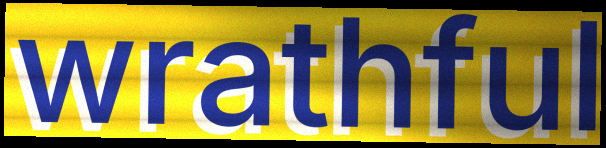
wrathful